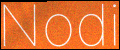
Nodi